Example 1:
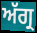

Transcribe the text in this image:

ਅੱਗ੍ਰ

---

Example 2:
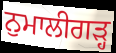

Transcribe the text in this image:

ਨੁਮਾਲੀਗੜ੍ਹ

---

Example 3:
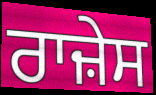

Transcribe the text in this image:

ਰਾਜ਼ੇਸ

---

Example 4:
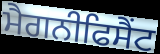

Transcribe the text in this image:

ਮੈਗਨੀਫਿਸੈਂਟ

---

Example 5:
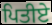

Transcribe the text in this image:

ਪਿਤੀਏ